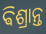
ଵିଶ୍ରାନ୍ତ